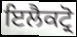
ਇਲੈਕਟ੍ਰੋ